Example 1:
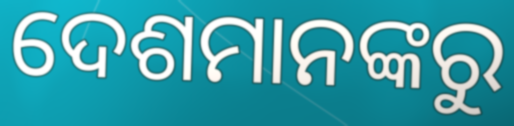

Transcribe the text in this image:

ଦେଶମାନଙ୍କରୁ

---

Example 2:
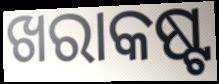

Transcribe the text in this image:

ଖରାକଷ୍ଟ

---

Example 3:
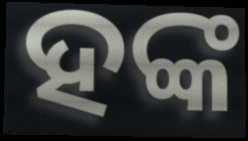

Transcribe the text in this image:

ହଙ୍କ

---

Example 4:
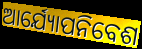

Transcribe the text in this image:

ଆର୍ଯ୍ୟୋପନିବେଶ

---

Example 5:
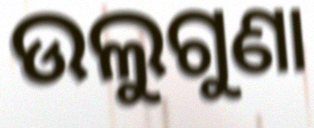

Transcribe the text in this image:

ଉଲୁଗୁଣା